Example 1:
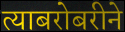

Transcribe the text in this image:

त्याबरोबरीने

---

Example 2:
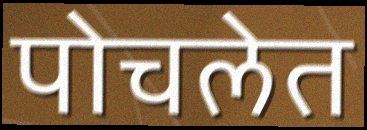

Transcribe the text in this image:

पोचलेत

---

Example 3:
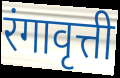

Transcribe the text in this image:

रंगावृत्ती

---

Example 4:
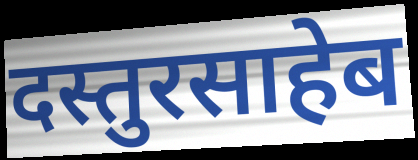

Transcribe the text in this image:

दस्तुरसाहेब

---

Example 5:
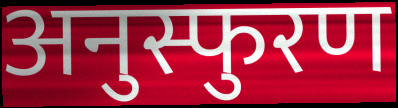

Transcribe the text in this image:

अनुस्फुरण